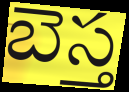
బెస్త